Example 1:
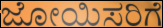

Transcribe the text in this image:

ಜೋಯಿಸರಿಗೆ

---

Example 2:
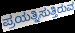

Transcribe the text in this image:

ಪ್ರಯತ್ನಿಸುತ್ತಿರುವ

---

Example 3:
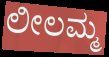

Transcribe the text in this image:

ಲೀಲಮ್ಮ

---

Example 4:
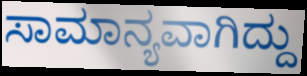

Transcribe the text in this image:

ಸಾಮಾನ್ಯವಾಗಿದ್ದು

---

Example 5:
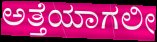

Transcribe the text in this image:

ಅತ್ತೆಯಾಗಲೀ